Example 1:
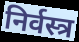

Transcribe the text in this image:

निर्वस्त्र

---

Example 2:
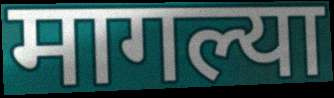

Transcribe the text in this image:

मागल्या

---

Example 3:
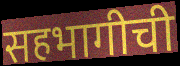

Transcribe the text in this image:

सहभागीची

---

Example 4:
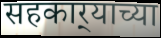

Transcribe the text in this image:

सहकार्याच्या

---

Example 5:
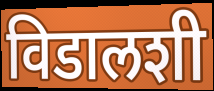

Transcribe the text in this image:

विडालशी